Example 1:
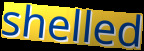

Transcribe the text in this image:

shelled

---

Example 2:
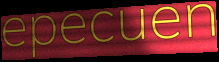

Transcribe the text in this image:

epecuen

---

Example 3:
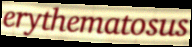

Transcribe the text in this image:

erythematosus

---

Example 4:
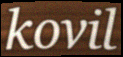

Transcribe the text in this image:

kovil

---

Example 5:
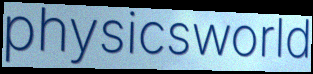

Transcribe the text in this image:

physicsworld